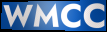
WMCC